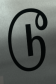
டூ